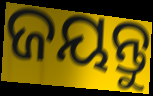
ଜୟନ୍ତୁ